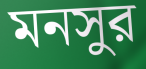
মনসুর